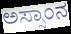
ಅಸ್ಸಾಂನ